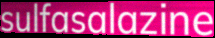
sulfasalazine